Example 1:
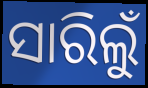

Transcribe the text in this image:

ସାରିଲୁଁ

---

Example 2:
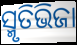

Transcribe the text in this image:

ସ୍ମୃତିଭିଜା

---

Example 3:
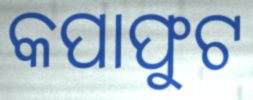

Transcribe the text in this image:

କପାଫୁଟ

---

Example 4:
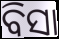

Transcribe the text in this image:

ବିସା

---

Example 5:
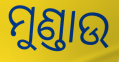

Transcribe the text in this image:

ମୁଣ୍ଡାଉ